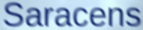
Saracens